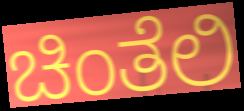
ಚಿಂತೆಲಿ